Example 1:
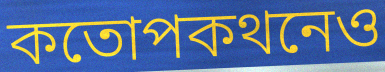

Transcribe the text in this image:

কতোপকথনেও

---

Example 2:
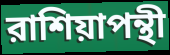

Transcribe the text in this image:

রাশিয়াপন্থী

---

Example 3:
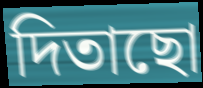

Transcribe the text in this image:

দিতাছো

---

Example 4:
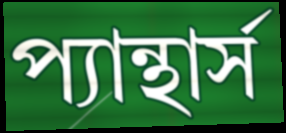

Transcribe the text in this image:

প্যান্থার্স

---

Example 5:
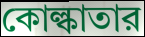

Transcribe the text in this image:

কোল্কাতার